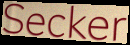
Secker